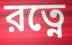
রত্নে